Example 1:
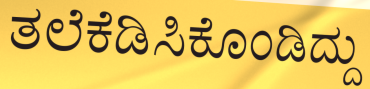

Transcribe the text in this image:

ತಲೆಕೆಡಿಸಿಕೊಂಡಿದ್ದು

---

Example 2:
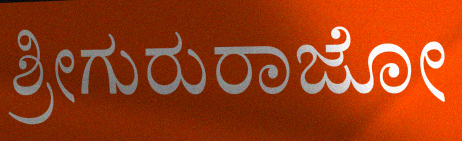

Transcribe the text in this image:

ಶ್ರೀಗುರುರಾಜೋ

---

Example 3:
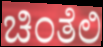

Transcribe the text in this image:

ಚಿಂತೆಲಿ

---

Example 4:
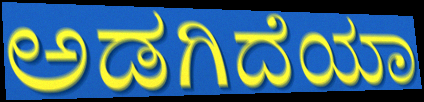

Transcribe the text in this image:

ಅಡಗಿದೆಯಾ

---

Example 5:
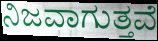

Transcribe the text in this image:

ನಿಜವಾಗುತ್ತವೆ